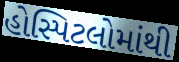
હોસ્પિટલોમાંથી